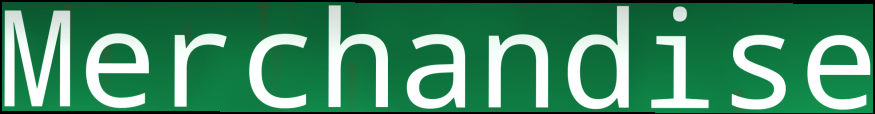
Merchandise